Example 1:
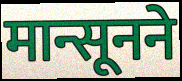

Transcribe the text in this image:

मान्सूनने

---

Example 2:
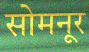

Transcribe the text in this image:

सोमनूर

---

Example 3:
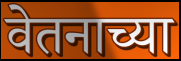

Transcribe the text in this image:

वेतनाच्या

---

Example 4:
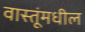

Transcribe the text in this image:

वास्तूंमधील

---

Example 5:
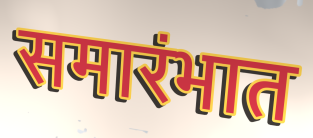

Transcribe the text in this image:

समारंभात